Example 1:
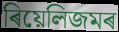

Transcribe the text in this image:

ৰিয়েলিজমৰ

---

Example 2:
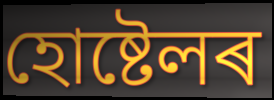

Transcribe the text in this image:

হোষ্টেলৰ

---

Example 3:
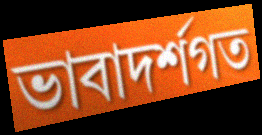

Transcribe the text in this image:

ভাবাদৰ্শগত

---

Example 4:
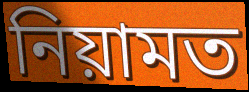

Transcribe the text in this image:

নিয়ামত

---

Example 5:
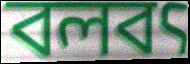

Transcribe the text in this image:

বলবৎ